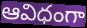
ఆవిధంగా